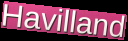
Havilland